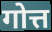
गोत्त